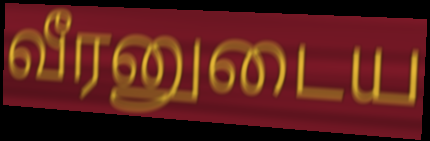
வீரனுடைய